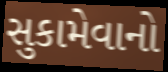
સુકામેવાનો